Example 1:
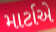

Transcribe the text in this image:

માર્ટાએ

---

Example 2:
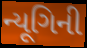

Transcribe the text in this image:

ન્યૂગિની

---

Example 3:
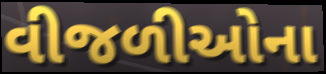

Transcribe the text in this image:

વીજળીઓના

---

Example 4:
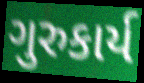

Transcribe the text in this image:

ગુરુકાર્ય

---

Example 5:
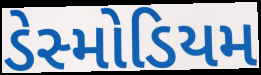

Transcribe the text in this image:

ડેસ્મોડિયમ